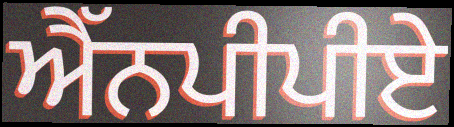
ਐੱਨਪੀਪੀਏ